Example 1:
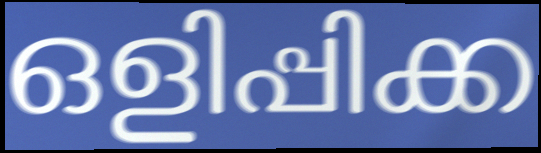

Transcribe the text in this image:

ഒളിപ്പിക്ക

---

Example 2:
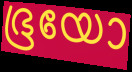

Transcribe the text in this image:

ഭൂയോ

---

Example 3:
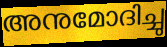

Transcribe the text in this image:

അനുമോദിച്ചു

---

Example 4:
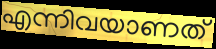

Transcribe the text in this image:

എന്നിവയാണത്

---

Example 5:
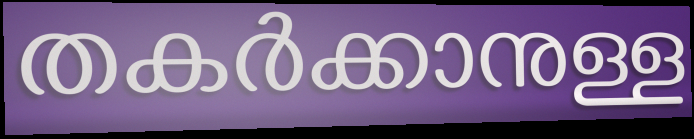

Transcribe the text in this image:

തകർക്കാനുള്ള